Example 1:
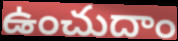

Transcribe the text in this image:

ఉంచుదాం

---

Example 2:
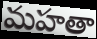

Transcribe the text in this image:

మహతా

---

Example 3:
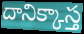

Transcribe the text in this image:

దానిక్కాస్త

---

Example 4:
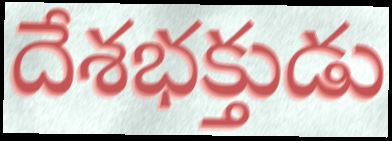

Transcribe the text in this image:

దేశభక్తుడు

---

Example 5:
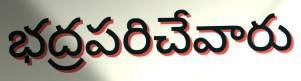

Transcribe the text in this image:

భద్రపరిచేవారు